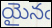
యైనఁ